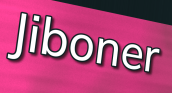
Jiboner